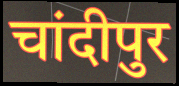
चांदीपुर